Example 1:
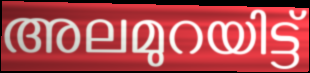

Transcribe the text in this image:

അലമുറയിട്ട്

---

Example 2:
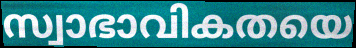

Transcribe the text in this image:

സ്വാഭാവികതയെ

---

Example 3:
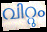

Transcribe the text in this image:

വിറ്റും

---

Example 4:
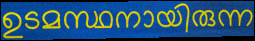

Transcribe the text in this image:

ഉടമസ്ഥനായിരുന്ന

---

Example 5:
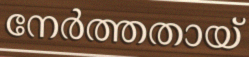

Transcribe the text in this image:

നേർത്തതായ്